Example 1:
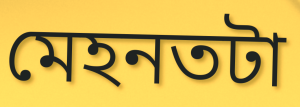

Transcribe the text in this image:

মেহনতটা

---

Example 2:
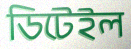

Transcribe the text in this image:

ডিটেইল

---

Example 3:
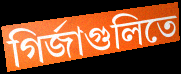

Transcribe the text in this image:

গির্জাগুলিতে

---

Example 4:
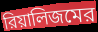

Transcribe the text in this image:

রিয়ালিজমের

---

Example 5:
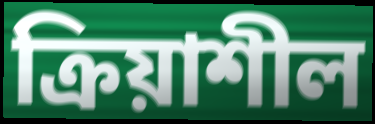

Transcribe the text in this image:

ক্রিয়াশীল